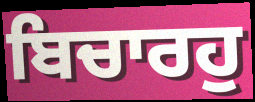
ਬਿਚਾਰਹੁ